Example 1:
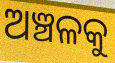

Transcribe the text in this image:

ଅଞ୍ଚଳକୁ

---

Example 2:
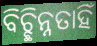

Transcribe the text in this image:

ବିଚ୍ଛିନ୍ନତାହିଁ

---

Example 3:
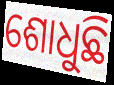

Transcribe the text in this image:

ଶୋଧୁଛି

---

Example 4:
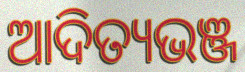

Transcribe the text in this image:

ଆଦିତ୍ୟଭଞ୍ଜ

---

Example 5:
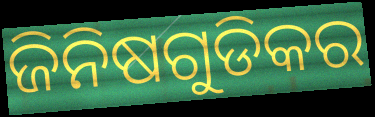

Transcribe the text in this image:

ଜିନିଷଗୁଡିକର